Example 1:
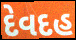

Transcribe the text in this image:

દેવદહ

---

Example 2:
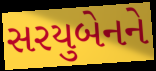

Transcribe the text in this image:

સરયુબેનને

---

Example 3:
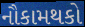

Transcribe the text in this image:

નૌકામથકો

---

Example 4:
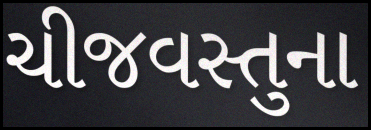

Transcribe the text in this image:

ચીજવસ્તુના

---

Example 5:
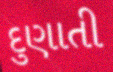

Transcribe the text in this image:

દુણાતી